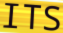
ITS